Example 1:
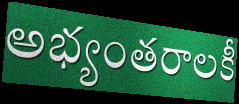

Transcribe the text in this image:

అభ్యంతరాలకీ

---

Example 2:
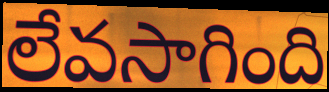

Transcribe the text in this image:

లేవసాగింది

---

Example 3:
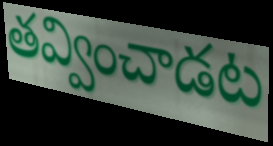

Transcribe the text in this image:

తవ్వించాడట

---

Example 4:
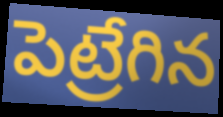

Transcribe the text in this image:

పెట్రేగిన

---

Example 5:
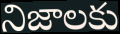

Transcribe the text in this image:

నిజాలకు